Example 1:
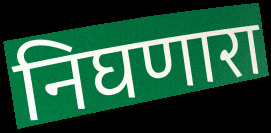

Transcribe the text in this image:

निघणारा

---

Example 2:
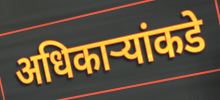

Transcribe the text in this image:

अधिकाऱ्यांकडे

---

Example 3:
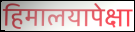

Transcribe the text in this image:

हिमालयापेक्षा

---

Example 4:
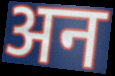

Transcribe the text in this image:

अन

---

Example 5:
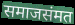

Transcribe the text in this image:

समाजसंमत